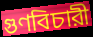
গুণবিচারী